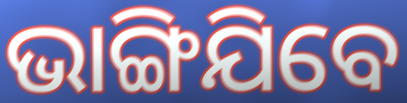
ଭାଙ୍ଗିଯିବେ